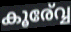
കൂര്വ്വേ